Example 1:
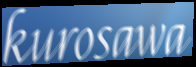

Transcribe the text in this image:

kurosawa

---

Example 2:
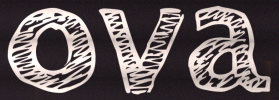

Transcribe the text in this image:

ova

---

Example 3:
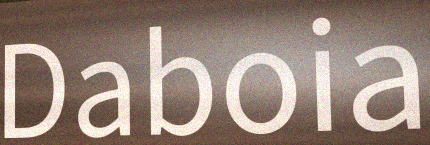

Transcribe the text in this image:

Daboia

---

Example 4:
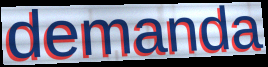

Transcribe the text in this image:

demanda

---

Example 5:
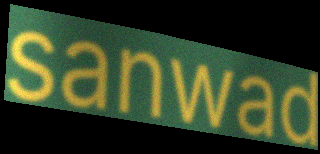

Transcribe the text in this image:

sanwad